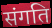
संगति